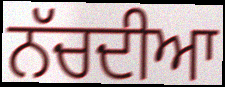
ਨੱਚਦੀਆ